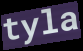
tyla